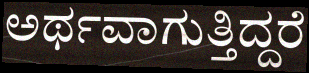
ಅರ್ಥವಾಗುತ್ತಿದ್ದರೆ